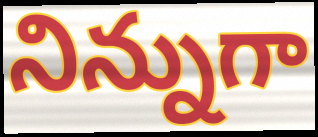
నిన్నుగా